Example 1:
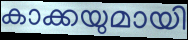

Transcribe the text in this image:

കാക്കയുമായി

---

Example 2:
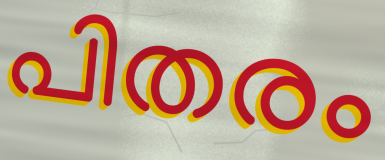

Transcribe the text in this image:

പിതരം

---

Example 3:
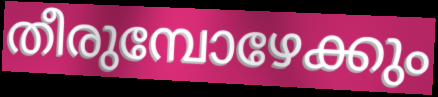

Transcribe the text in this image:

തീരുമ്പോഴേക്കും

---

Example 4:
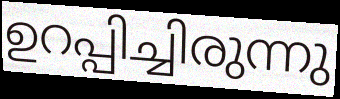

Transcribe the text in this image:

ഉറപ്പിച്ചിരുന്നു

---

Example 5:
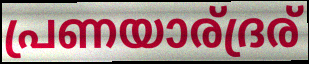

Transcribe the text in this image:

പ്രണയാര്ദ്രര്